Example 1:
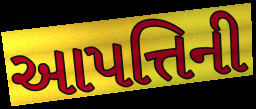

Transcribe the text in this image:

આપત્તિની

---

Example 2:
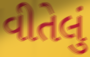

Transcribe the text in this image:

વીતેલું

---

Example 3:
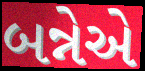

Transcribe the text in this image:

બન્નેએ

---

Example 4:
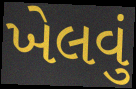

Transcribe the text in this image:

ખેલવું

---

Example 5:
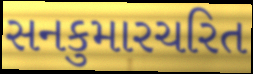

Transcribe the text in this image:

સનકુમારચરિત